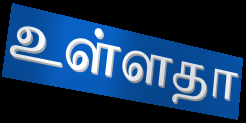
உள்ளதா